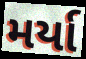
મર્યા